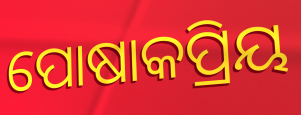
ପୋଷାକପ୍ରିୟ